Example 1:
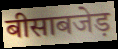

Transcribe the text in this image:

बीसाबजेड़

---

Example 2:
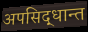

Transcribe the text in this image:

अपसिद्धान्त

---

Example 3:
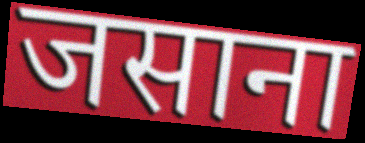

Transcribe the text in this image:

जसाना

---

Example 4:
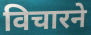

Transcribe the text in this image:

विचारने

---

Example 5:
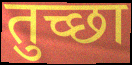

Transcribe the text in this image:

तुच्छा